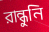
রান্ধুনি